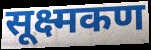
सूक्ष्मकण